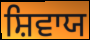
ਸ਼ਿਵਾਯ